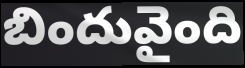
బిందువైంది